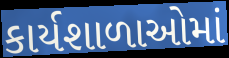
કાર્યશાળાઓમાં